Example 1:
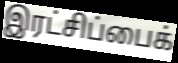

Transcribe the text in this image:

இரட்சிப்பைக்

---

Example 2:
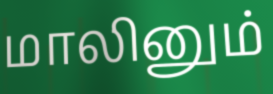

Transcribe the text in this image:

மாலினும்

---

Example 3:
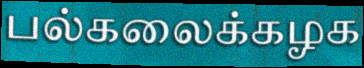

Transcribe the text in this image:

பல்கலைக்கழக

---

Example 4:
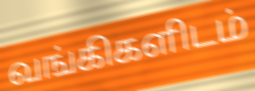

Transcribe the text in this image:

வங்கிகளிடம்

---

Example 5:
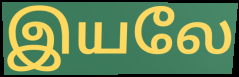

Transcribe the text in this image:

இயலே